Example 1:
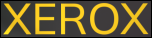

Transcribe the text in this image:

XEROX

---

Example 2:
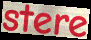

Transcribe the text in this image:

stere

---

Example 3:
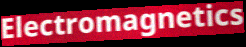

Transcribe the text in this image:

Electromagnetics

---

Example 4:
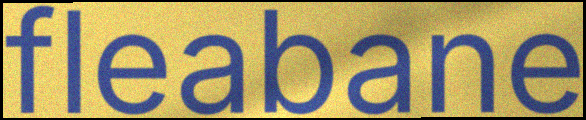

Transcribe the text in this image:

fleabane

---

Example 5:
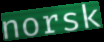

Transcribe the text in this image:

norsk